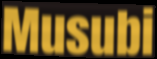
Musubi